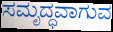
ಸಮೃದ್ಧವಾಗುವ